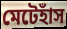
মেটেহাঁস